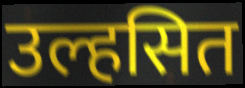
उल्हसित